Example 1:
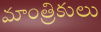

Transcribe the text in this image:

మాంత్రికులు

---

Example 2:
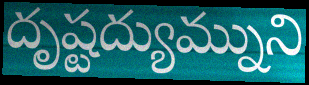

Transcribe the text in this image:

దృష్టద్యుమ్నుని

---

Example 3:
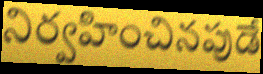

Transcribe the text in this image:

నిర్వహించినపుడే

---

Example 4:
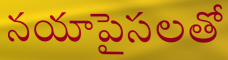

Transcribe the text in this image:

నయాపైసలతో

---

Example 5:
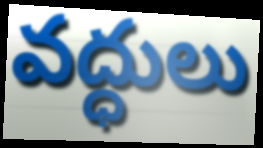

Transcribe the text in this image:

వద్ధులు